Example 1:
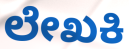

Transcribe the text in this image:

ಲೇಖಕಿ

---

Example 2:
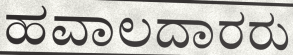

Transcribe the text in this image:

ಹವಾಲದಾರರು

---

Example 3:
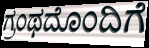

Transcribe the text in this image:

ಗ್ರಂಥದೊಂದಿಗೆ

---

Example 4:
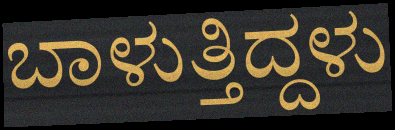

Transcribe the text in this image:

ಬಾಳುತ್ತಿದ್ದಳು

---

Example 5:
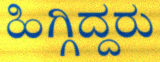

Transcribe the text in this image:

ಹಿಗ್ಗಿದ್ದರು